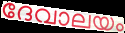
ദേവാലയം